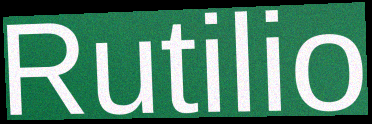
Rutilio